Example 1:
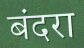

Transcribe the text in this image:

बंदरा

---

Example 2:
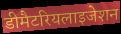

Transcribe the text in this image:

डीमैटरियलाइजेशन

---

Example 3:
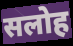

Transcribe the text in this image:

सलोह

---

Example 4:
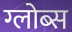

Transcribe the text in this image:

ग्लोब्स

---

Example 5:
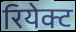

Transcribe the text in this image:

रियेक्ट